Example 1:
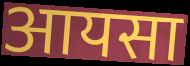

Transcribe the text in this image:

आयसा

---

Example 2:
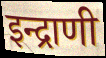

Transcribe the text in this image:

इन्द्राणी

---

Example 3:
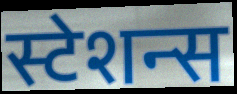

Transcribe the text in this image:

स्टेशन्स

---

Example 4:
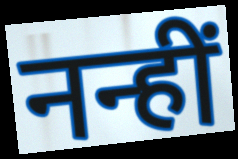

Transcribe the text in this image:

नन्‍हीं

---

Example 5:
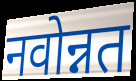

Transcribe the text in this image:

नवोन्नत